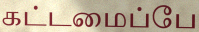
கட்டமைப்பே